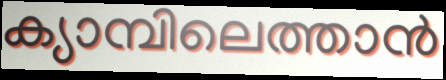
ക്യാമ്പിലെത്താൻ